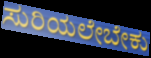
ಸುರಿಯಲೇಬೇಕು